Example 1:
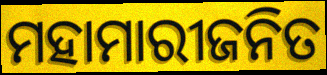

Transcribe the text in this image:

ମହାମାରୀଜନିତ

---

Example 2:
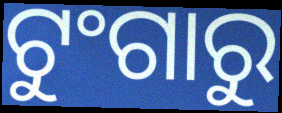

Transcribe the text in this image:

ଟୁଂଗାରୁ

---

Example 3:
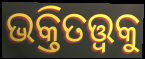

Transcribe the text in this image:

ଭକ୍ତିତତ୍ତ୍ୱକୁ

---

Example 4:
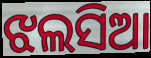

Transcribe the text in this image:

ଝଲସିଆ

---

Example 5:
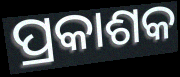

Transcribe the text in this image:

ପ୍ରକାଶକ